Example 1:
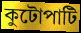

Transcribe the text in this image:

কুটোপাটি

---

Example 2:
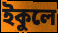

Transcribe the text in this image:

ইকুলে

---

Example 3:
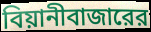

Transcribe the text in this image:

বিয়ানীবাজারের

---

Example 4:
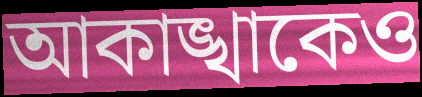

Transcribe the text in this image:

আকাঙ্খাকেও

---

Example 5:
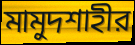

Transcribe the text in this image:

মামুদশাহীর